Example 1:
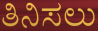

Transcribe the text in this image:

ತಿನಿಸಲು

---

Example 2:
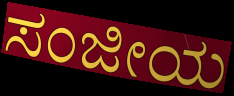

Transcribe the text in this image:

ಸಂಜೀಯ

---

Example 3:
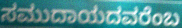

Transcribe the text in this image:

ಸಮುದಾಯದವರೆಂಬ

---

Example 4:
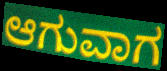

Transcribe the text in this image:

ಆಗುವಾಗ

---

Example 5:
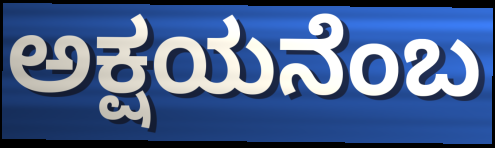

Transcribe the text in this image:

ಅಕ್ಷಯನೆಂಬ